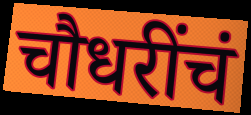
चौधरींचं